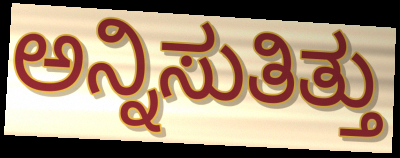
ಅನ್ನಿಸುತಿತ್ತು